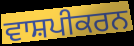
ਵਾਸ਼ਪੀਕਰਨ